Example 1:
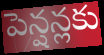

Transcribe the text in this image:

పెన్షన్లకు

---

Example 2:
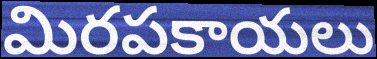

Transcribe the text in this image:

మిరపకాయలు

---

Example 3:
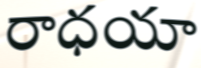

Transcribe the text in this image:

రాధయా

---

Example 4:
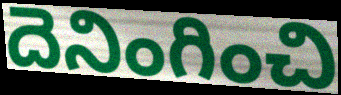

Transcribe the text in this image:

దెనింగించి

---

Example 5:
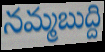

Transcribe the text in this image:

నమ్మబుద్ది